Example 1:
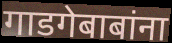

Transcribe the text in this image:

गाडगेबाबांना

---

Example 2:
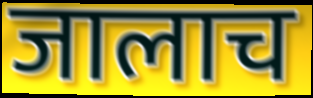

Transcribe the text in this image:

जालाच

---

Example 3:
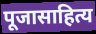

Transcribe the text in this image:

पूजासाहित्य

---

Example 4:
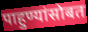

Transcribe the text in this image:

पाहुण्यांसोबत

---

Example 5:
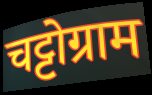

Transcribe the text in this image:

चट्टोग्राम